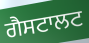
ਗੈਸਟਾਲਟ